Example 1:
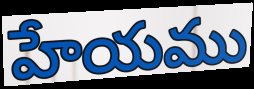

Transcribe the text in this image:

హేయము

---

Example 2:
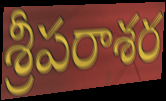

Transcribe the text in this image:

శ్రీపరాశర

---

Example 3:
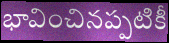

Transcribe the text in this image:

భావించినప్పటికీ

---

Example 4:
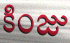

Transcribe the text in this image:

కింజు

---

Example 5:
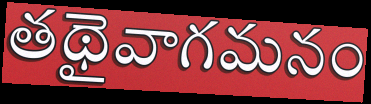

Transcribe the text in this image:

తథైవాగమనం